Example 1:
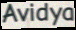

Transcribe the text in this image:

Avidya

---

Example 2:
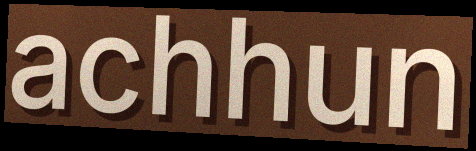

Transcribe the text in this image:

achhun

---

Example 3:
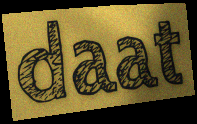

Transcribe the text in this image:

daat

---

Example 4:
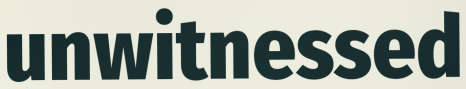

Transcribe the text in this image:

unwitnessed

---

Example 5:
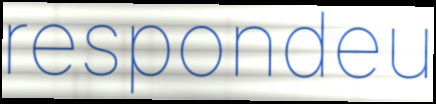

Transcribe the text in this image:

respondeu